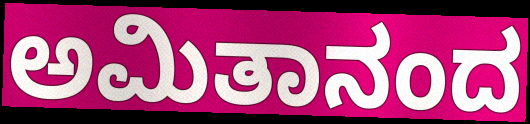
ಅಮಿತಾನಂದ